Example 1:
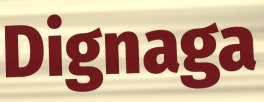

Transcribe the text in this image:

Dignaga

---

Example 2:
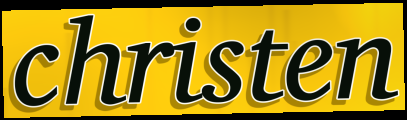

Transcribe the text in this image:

christen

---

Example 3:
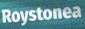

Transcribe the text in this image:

Roystonea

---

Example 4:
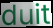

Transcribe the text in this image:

duit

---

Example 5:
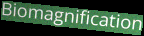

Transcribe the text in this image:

Biomagnification